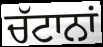
ਚੱਟਾਨਾਂ